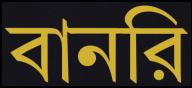
বানরি